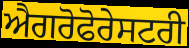
ਐਗਰੋਫੋਰੇਸਟਰੀ